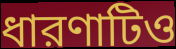
ধারণাটিও